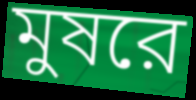
মুষরে